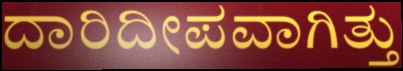
ದಾರಿದೀಪವಾಗಿತ್ತು